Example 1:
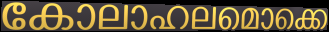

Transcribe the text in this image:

കോലാഹലമൊക്കെ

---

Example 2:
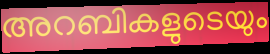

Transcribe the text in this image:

അറബികളുടെയും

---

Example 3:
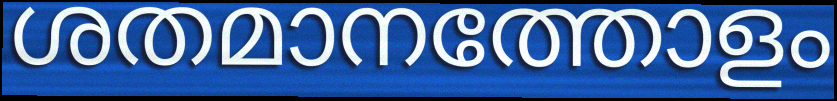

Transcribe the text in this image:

ശതമാനത്തോളം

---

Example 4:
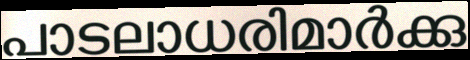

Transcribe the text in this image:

പാടലാധരിമാർക്കു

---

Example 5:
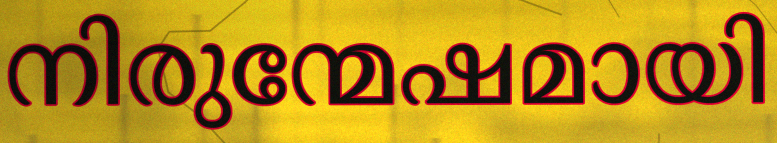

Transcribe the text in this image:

നിരുന്മേഷമായി